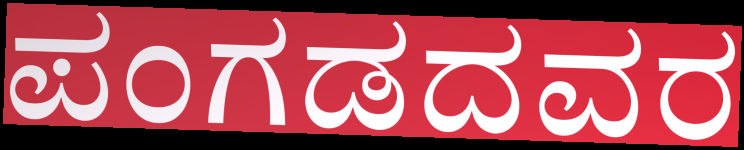
ಪಂಗಡದವರ